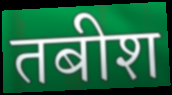
तबीश